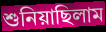
শুনিয়াছিলাম